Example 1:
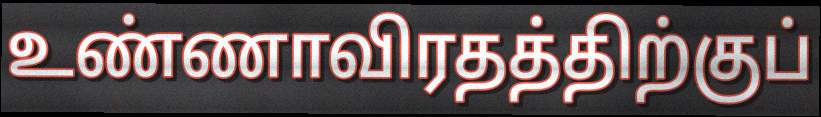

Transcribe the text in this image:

உண்ணாவிரதத்திற்குப்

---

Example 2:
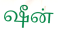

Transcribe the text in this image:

ஷீன்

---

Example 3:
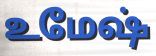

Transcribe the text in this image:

உமேஷ்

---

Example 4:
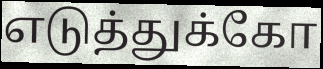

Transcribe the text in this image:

எடுத்துக்கோ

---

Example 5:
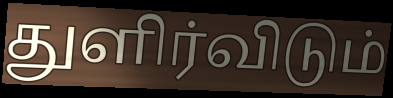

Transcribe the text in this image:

துளிர்விடும்